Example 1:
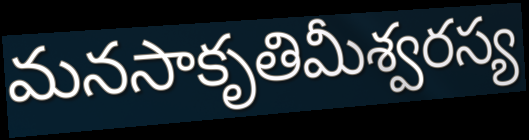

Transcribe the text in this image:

మనసాకృతిమీశ్వరస్య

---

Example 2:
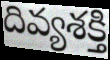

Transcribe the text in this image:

దివ్యశక్తి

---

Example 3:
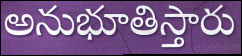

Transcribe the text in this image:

అనుభూతిస్తారు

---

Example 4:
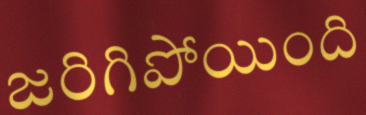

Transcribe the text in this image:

జరిగిపోయింది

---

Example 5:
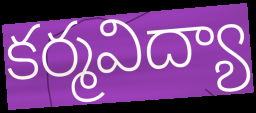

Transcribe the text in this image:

కర్మవిద్యా